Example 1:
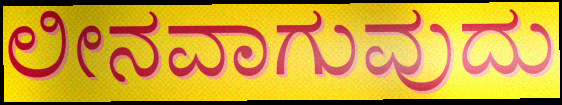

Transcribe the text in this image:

ಲೀನವಾಗುವುದು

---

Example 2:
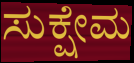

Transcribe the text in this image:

ಸುಕ್ಷೇಮ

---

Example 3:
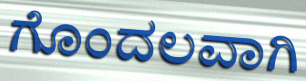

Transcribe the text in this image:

ಗೊಂದಲವಾಗಿ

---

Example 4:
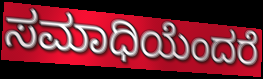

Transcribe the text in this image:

ಸಮಾಧಿಯೆಂದರೆ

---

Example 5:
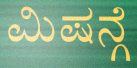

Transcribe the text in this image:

ಮಿಷನ್ಗೆ